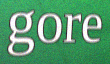
gore